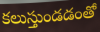
కలుస్తుండడంతో